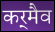
कर्मैव